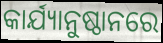
କାର୍ଯ୍ୟାନୁଷ୍ଠାନରେ